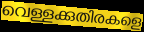
വെള്ളക്കുതിരകളെ